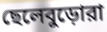
ছেলেবুড়োরা